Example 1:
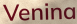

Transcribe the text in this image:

Venina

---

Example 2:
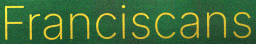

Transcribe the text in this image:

Franciscans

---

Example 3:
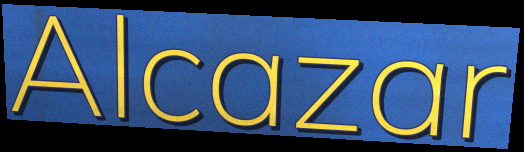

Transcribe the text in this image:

Alcazar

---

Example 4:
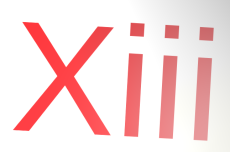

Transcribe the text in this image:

Xiii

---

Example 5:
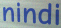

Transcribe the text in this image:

nindi